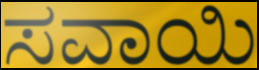
ಸವಾಯಿ